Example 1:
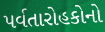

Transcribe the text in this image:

પર્વતારોહકોનો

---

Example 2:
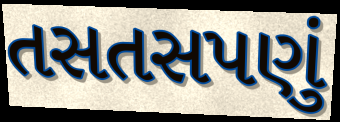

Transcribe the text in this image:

તસતસપણું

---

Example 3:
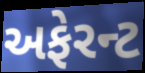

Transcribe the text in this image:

અફેરન્ટ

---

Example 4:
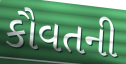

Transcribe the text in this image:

કૌવતની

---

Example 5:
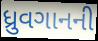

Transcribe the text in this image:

ધ્રુવગાનની